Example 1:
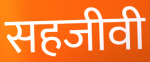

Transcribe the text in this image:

सहजीवी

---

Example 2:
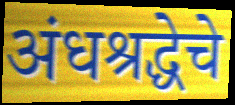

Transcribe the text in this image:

अंधश्रद्धेचे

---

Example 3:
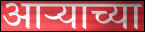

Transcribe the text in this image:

आऱ्याच्या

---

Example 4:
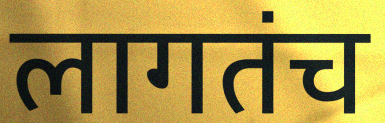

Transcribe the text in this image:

लागतंच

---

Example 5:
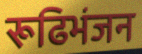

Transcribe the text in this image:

रूढिभंजन